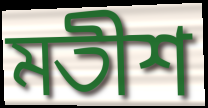
মতীশ